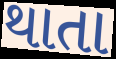
થાતા